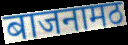
बाजनामठ